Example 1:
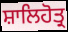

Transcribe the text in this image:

ਸ਼ਾਲਿਹੋਤ੍ਰ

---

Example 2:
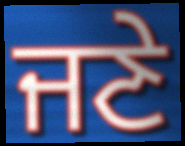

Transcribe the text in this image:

ਜਣੇ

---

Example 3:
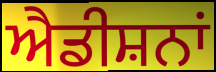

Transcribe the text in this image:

ਐਡੀਸ਼ਨਾਂ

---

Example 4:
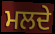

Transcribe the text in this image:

ਮਲਦੇ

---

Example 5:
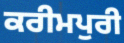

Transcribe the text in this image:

ਕਰੀਮਪੁਰੀ